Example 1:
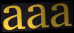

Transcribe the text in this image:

aaa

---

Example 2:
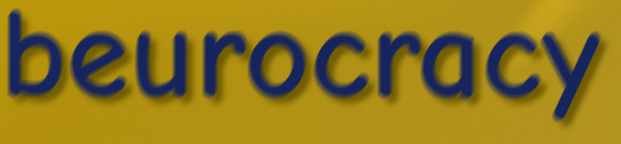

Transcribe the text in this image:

beurocracy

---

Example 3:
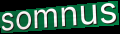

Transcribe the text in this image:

somnus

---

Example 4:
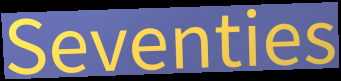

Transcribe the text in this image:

Seventies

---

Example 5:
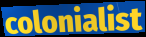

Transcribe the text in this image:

colonialist